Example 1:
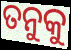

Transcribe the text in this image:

ତନୁକୁ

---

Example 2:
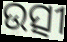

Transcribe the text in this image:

ଉତ୍ସୀ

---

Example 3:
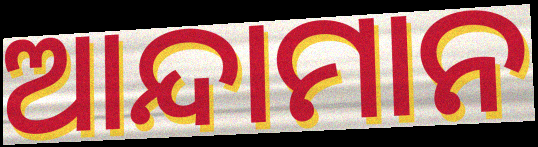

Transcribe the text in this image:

ଆନ୍ଦାମାନ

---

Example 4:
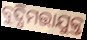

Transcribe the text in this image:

ବୁଦ୍ଧିମତ୍ତାଯୁକ୍ତ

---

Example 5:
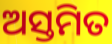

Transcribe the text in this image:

ଅସ୍ତମିତ